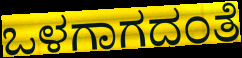
ಒಳಗಾಗದಂತೆ